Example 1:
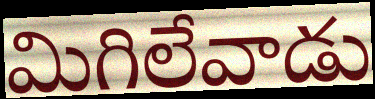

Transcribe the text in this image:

మిగిలేవాడు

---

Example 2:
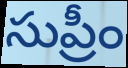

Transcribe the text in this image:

సుప్రీం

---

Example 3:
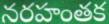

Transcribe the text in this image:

నరహంతక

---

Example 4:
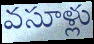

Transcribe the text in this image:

వసూళ్లు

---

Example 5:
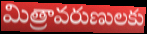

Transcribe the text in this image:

మిత్రావరుణులకు